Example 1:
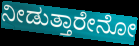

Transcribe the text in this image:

ನೀಡುತ್ತಾರೇನೋ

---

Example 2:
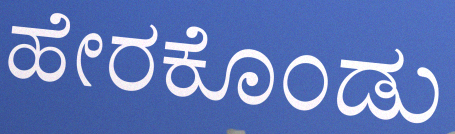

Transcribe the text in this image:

ಹೇರಕೊಂಡು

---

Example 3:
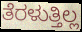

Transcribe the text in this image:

ತೆರಳುತ್ತಿಲ್ಲ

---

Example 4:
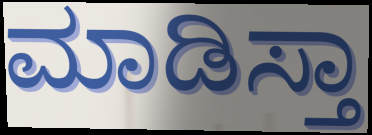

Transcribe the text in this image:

ಮಾಡಿಸ್ತಾ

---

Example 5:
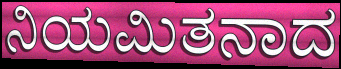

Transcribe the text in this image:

ನಿಯಮಿತನಾದ